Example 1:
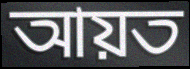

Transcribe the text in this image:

আয়ত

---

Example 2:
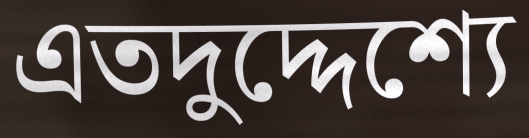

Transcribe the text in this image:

এতদুদ্দেশ্যে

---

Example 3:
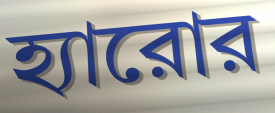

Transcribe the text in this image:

হ্যারোর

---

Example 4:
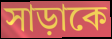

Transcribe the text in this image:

সাড়াকে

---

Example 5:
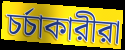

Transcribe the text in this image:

চর্চাকারীরা